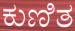
ಕುಣಿತ